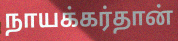
நாயக்கர்தான்